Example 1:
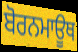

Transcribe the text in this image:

ਬੋਰਨਮਾਊਥ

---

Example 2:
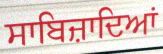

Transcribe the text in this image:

ਸਾਬਿਜ਼ਾਦਿਆਂ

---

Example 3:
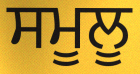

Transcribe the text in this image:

ਸਮੂਲੂ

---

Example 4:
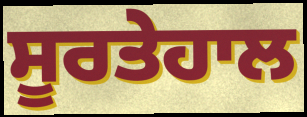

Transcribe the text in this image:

ਸੂਰਤੇਹਾਲ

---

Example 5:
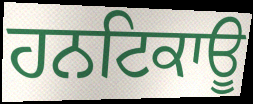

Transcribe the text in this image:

ਹਨਟਿਕਾਊ